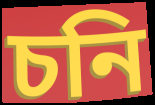
চনি